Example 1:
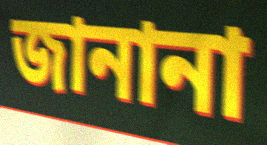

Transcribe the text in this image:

জানানা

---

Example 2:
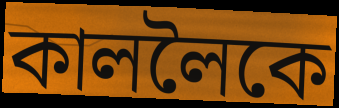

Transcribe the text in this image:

কাললৈকে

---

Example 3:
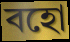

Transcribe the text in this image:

বহো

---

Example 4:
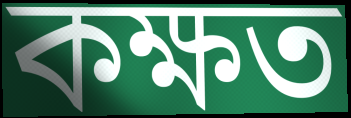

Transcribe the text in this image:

কক্ষত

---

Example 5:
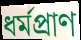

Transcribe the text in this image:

ধৰ্মপ্ৰাণ